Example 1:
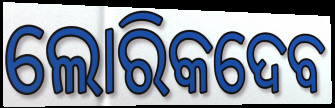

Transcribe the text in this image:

ଲୋରିକଦେବ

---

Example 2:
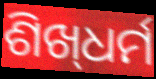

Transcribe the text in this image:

ଶିଖ୍‌ଧର୍ମ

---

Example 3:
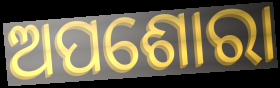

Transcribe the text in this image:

ଅପଶୋରା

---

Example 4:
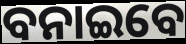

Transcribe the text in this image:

ବନାଇବେ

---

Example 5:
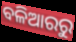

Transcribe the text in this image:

ବଳିଆରରୁ